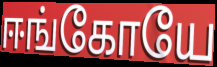
ஈங்கோயே